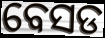
ବେସଡ